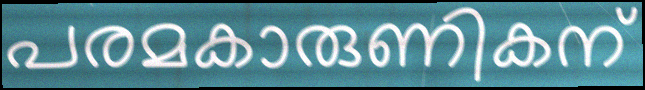
പരമകാരുണികന്